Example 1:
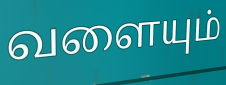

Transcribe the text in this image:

வளையும்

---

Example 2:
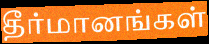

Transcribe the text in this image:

தீர்மானங்கள்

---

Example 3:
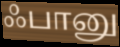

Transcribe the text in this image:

ஃபானு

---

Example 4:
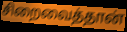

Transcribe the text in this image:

சிறைவைத்தான்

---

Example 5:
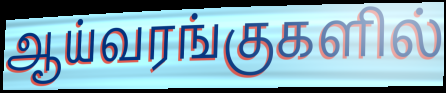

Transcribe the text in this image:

ஆய்வரங்குகளில்